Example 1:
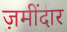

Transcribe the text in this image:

ज़मींदार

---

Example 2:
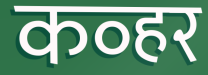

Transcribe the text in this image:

कव्हर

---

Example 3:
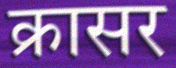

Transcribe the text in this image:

क्रासर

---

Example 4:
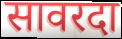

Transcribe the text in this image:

सावरदा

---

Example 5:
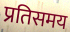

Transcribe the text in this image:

प्रतिसमय